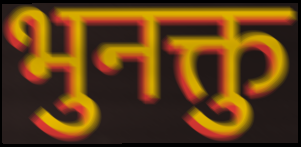
भुनक्तु